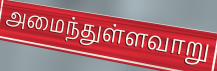
அமைந்துள்ளவாறு